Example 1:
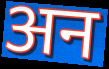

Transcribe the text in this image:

अन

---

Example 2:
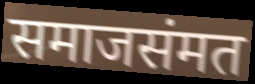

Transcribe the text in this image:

समाजसंमत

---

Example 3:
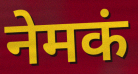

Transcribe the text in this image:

नेमकं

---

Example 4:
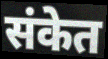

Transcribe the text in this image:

संकेत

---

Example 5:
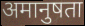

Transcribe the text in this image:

अमानुषता